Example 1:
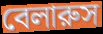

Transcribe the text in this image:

বেলারুস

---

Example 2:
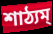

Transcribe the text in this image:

শাঠ্যম্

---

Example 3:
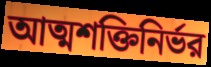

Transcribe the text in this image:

আত্মশক্তিনির্ভর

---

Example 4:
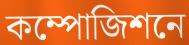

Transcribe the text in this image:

কম্পোজিশনে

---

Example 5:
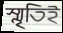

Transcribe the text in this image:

স্মৃতিই